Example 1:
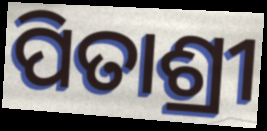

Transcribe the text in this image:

ପିତାଶ୍ରୀ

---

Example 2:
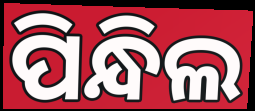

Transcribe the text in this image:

ପିନ୍ଧିଲ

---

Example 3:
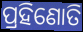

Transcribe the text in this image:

ପ୍ରହିଣୋତି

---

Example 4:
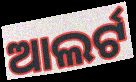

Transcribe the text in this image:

ଆଲର୍ଟ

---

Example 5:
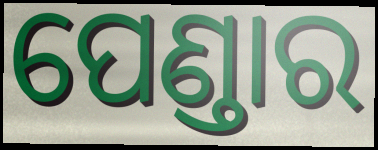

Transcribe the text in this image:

ପେଣ୍ଡାର